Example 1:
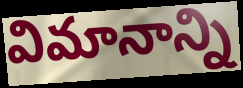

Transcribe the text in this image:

విమానాన్ని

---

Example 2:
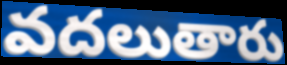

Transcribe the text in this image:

వదలుతారు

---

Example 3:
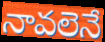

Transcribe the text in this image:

నావలెనే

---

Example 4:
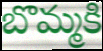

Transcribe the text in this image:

బొమ్మకి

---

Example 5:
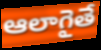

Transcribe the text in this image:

ఆలాగైతే